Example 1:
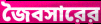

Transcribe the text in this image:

জৈবসারের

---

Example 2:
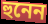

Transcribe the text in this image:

হুনেন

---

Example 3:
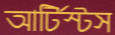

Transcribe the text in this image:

আর্টিস্টস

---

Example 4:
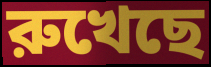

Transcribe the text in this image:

রুখেছে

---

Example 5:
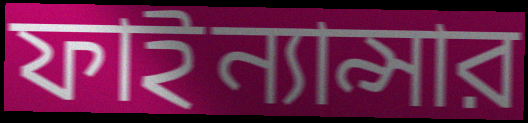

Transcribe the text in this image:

ফাইন্যান্সার